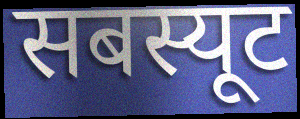
सबस्यूट